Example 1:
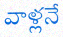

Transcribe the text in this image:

వాళ్లనే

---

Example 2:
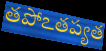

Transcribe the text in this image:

తపోఽతప్యత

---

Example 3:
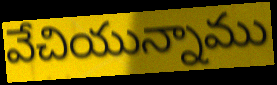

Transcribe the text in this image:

వేచియున్నాము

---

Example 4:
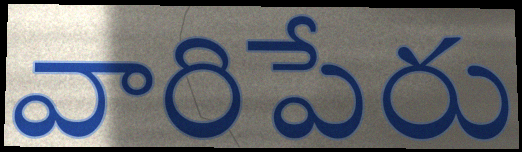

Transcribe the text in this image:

వారిపేరు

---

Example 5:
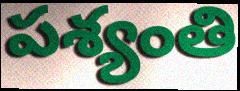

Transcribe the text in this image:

పశ్యంతి